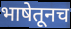
भाषेतूनच